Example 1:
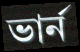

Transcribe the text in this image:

ভার্ন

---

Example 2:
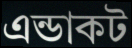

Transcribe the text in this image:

এন্ডাকট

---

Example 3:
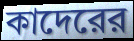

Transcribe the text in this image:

কাদেরের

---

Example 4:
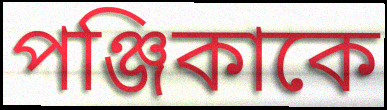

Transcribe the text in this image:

পঞ্জিকাকে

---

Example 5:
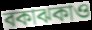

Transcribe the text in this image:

বকাঝকাও